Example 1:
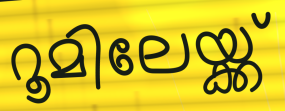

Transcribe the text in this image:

റൂമിലേയ്ക്ക്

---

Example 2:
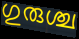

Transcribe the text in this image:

ഗുരുശ്ച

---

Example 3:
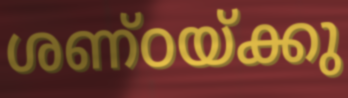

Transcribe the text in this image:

ശണ്ഠയ്ക്കു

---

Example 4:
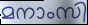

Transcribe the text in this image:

മനാംസി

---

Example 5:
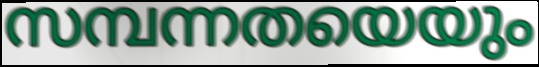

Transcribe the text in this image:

സമ്പന്നതയെയും